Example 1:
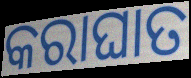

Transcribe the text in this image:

କରାଘାତ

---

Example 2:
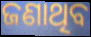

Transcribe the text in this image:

ଜଣାଥିବ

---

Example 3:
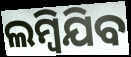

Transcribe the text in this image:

ଲମ୍ୱିଯିବ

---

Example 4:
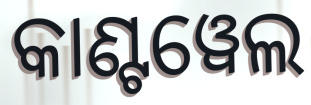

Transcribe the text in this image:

କାଣ୍ଟୱେଲ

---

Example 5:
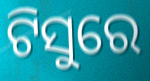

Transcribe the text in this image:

ଟିସୁରେ